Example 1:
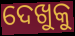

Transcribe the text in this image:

ଦେଖୁକୁ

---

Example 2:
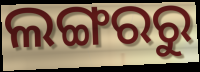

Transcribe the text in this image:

ଲଙ୍ଗରରୁ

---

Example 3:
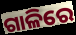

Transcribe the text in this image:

ଗାଳିରେ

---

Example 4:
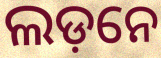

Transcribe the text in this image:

ଲଡ଼ନେ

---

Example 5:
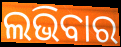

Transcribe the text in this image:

ଲଭିବାର